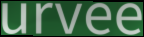
urvee